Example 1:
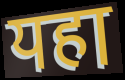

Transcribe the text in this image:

यहा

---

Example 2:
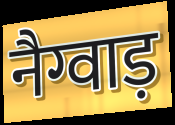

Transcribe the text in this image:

नैग्वाड़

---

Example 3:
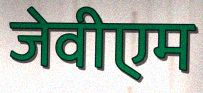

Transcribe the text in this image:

जेवीएम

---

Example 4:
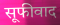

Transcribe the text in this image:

सूफीवाद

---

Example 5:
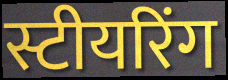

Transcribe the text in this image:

स्टीयरिंग